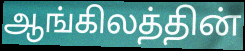
ஆங்கிலத்தின்